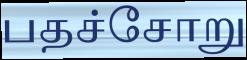
பதச்சோறு